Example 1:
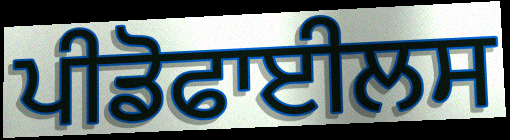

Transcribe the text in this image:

ਪੀਡੋਫਾਈਲਸ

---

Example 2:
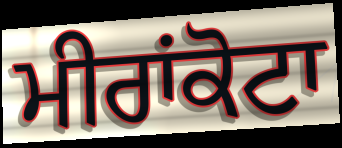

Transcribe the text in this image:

ਮੀਰਾਂਕੋਟਾ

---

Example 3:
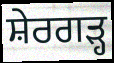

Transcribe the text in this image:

ਸ਼ੇਰਗੜ੍ਹ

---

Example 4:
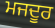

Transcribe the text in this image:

ਮਜਦੂਰ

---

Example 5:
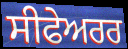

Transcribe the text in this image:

ਸੀਫੇਅਰਰ